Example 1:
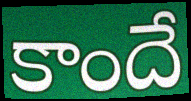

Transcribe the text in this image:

కాందే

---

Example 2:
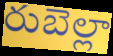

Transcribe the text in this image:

రుబెల్లా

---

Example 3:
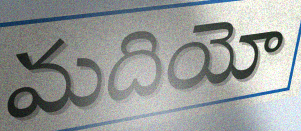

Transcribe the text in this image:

మదియో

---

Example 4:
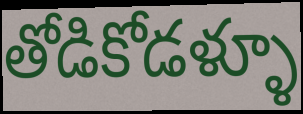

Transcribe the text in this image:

తోడికోడళ్ళూ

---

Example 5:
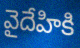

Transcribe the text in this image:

వైదేహికి